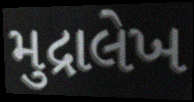
મુદ્રાલેખ